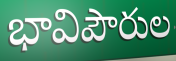
భావిపౌరుల